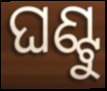
ଘଣ୍ଟୁ